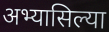
अभ्यासिल्या